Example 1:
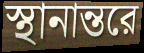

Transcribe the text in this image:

স্থানান্তরে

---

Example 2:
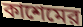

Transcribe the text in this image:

কাশেমের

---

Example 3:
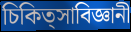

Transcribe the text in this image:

চিকিত্সাবিজ্ঞানী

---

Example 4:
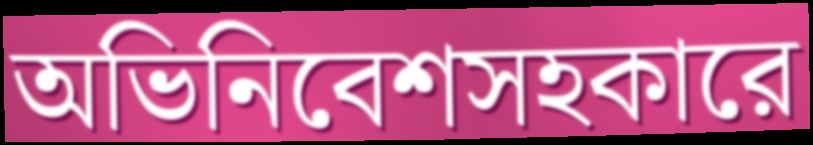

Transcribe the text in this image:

অভিনিবেশসহকারে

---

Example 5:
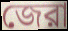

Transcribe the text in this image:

জেরা